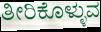
ತೀರಿಕೊಳ್ಳುವ